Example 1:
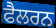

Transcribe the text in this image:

ਫੈਲਰਨ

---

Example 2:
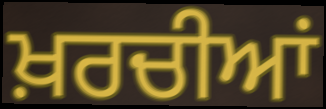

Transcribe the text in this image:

ਖ਼ਰਚੀਆਂ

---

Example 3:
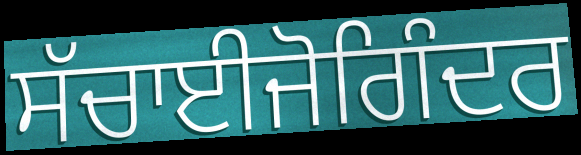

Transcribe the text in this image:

ਸੱਚਾਈਜੋਗਿੰਦਰ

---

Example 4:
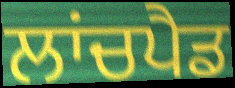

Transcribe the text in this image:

ਲਾਂਚਪੈਡ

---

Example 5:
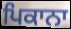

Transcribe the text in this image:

ਪਿਕਾਨਾ